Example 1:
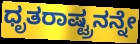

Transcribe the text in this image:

ಧೃತರಾಷ್ಟ್ರನನ್ನೇ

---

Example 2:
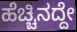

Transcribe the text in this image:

ಹೆಚ್ಚಿನದ್ದೇ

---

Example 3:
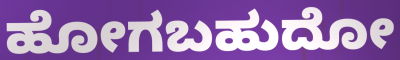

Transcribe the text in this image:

ಹೋಗಬಹುದೋ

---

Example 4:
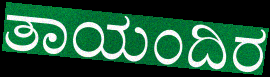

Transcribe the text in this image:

ತಾಯಂದಿರ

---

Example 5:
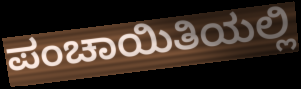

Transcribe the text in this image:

ಪಂಚಾಯಿತಿಯಲ್ಲಿ